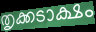
തൃക്കടാക്ഷം